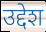
उद्देश